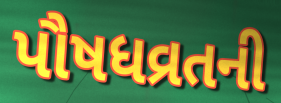
પૌષધવ્રતની